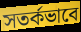
সতর্কভাবে